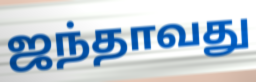
ஜந்தாவது